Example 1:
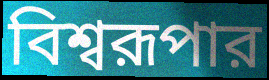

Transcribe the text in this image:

বিশ্বরূপার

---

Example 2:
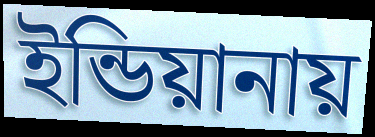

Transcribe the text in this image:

ইন্ডিয়ানায়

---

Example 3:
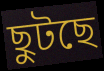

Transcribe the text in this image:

ছুটছে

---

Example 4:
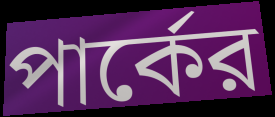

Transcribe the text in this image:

পার্কের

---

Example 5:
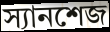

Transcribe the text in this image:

স্যানশেজ